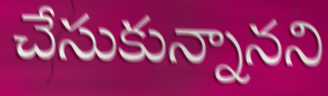
చేసుకున్నానని